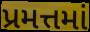
પ્રમત્તમાં